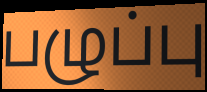
பழுப்பு